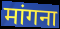
मांगना